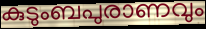
കുടുംബപുരാണവും